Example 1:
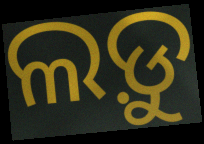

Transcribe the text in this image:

ଲଡ଼ୁ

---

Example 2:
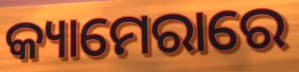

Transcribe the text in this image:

କ୍ୟାମେରାରେ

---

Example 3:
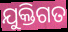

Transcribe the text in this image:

ଯୁକ୍ତିଗତ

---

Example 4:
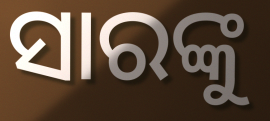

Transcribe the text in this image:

ସାରଙ୍କୁ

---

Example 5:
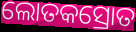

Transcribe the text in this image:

ଲୋତକସ୍ରୋତ